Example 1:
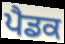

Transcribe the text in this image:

ਪੈਡਕ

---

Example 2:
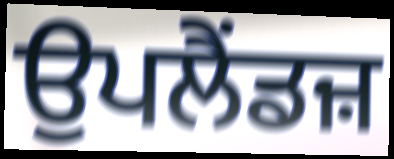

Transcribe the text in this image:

ਉਪਲੈਂਡਜ਼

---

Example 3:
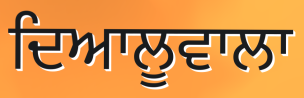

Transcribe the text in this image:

ਦਿਆਲੂਵਾਲਾ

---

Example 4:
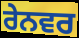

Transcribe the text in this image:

ਰੇਨਵਰ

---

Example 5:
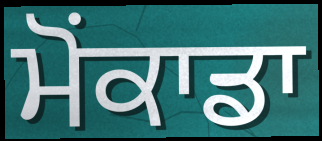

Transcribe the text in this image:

ਮੋਂਕਾਡਾ